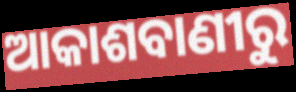
ଆକାଶବାଣୀରୁ